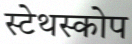
स्टेथस्कोप